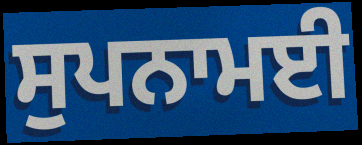
ਸੁਪਨਾਮਈ